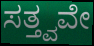
ಸತ್ತ್ವವೇ